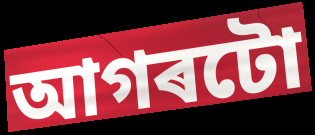
আগৰটো